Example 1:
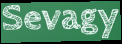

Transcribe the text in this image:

Sevagy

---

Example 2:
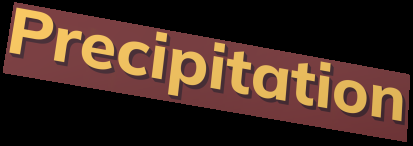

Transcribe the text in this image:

Precipitation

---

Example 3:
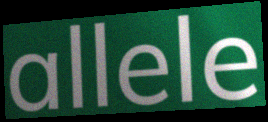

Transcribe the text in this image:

allele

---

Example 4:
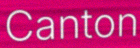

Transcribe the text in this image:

Canton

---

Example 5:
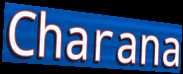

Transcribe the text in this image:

Charana